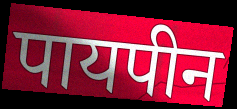
पायपीन